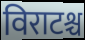
विराटश्च